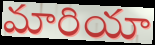
మారియా